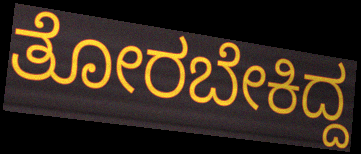
ತೋರಬೇಕಿದ್ದ